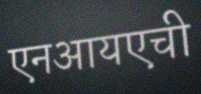
एनआयएची